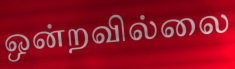
ஒன்றவில்லை